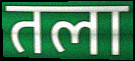
तला